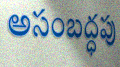
అసంబద్ధపు